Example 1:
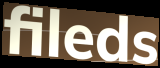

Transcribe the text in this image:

fileds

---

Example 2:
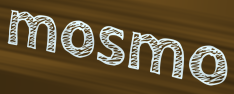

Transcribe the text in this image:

mosmo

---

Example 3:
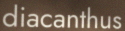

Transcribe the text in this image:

diacanthus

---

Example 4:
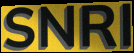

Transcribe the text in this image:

SNRI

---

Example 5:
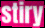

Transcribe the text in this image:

stiry